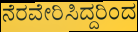
ನೆರವೇರಿಸಿದ್ದರಿಂದ